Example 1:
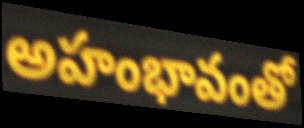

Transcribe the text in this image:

అహంభావంతో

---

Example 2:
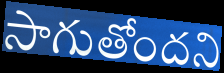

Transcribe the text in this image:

సాగుతోందని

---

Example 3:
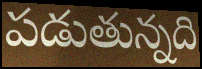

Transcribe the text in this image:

పడుతున్నది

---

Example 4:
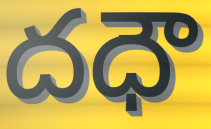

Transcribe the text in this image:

దధౌ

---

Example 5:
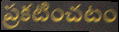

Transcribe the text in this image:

ప్రకటించటం